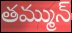
తమ్మున్